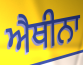
ਐਥੀਨਾ